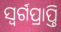
ସ୍ୱର୍ଗପ୍ରାପ୍ତି